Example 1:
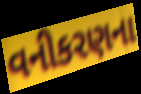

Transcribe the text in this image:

વનીકરણના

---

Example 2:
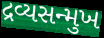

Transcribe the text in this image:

દ્રવ્યસન્મુખ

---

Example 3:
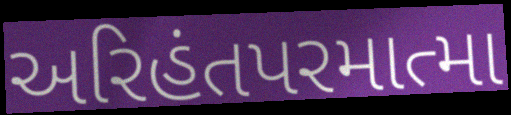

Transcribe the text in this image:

અરિહંતપરમાત્મા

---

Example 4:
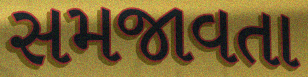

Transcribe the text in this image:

સમજાવતા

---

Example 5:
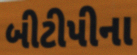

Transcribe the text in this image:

બીટીપીના